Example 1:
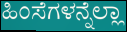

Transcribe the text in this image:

ಹಿಂಸೆಗಳನ್ನೆಲ್ಲಾ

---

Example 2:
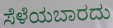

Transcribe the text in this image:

ಸೆಳೆಯಬಾರದು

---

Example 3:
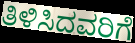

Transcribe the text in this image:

ತಿಳಿಸಿದವರಿಗೆ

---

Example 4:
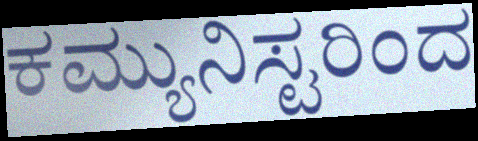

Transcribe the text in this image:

ಕಮ್ಯುನಿಸ್ಟರಿಂದ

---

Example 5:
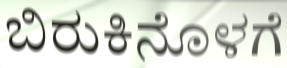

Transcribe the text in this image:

ಬಿರುಕಿನೊಳಗೆ